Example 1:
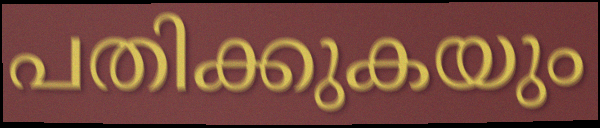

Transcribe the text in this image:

പതിക്കുകയും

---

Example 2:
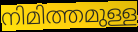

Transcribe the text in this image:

നിമിത്തമുള്ള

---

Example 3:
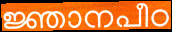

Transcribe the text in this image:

ജ്ഞാനപീഠ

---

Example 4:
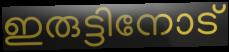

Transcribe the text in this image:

ഇരുട്ടിനോട്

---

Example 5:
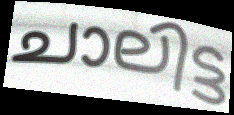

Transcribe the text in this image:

ചാലിട്ട